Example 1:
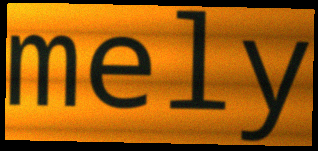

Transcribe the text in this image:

mely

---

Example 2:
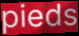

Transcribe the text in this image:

pieds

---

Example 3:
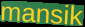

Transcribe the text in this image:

mansik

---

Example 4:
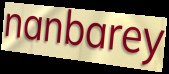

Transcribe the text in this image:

nanbarey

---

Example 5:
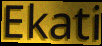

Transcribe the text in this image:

Ekati